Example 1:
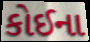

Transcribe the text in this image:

કોઈના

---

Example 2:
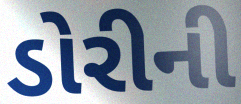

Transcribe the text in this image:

ડોરીની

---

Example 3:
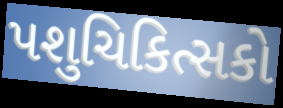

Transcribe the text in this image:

પશુચિકિત્સકો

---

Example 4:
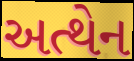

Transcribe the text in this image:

અત્થેન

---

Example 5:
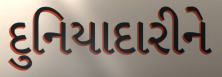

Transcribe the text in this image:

દુનિયાદારીને